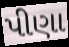
પીણા